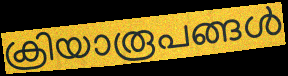
ക്രിയാരൂപങ്ങൾ